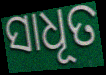
ସାଧୂତ